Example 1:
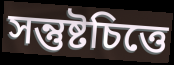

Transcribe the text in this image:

সন্তুষ্টচিত্তে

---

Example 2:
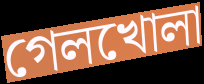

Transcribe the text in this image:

গেলখোলা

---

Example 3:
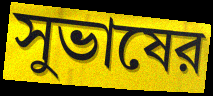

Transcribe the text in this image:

সুভাষের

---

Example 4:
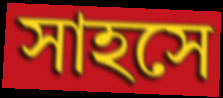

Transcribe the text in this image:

সাহসে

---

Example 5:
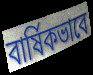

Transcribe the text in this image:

বার্ষিকভাবে